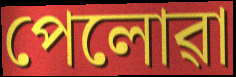
পেলোৱা